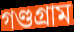
গণ্ডগ্রাম